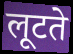
लूटते